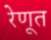
रेणूत